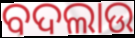
ବଦଲାଉ